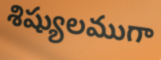
శిష్యులముగా